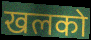
खलको